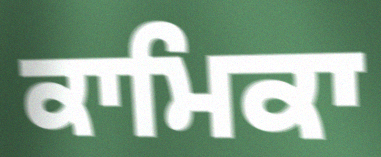
ਕਾਮਿਕਾ